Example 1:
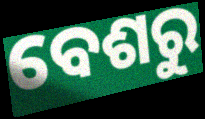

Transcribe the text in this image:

ବେଶରୁ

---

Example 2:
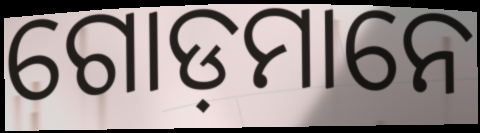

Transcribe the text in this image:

ଗୋଡ଼ମାନେ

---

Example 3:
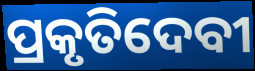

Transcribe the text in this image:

ପ୍ରକୃତିଦେବୀ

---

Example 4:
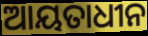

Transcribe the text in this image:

ଆୟତାଧୀନ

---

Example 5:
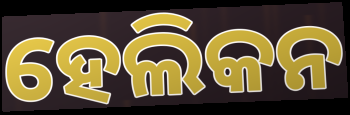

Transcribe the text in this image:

ହେଲିକନ